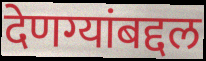
देणग्यांबद्दल